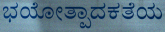
ಭಯೋತ್ಪಾದಕತೆಯ